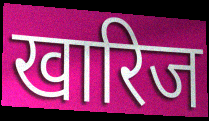
खारिज